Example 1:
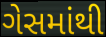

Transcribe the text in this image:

ગેસમાંથી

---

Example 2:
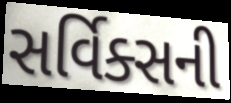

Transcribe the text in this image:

સર્વિક્સની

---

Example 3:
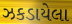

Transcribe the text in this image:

ઝકડાયેલા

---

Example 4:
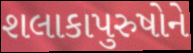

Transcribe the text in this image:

શલાકાપુરુષોને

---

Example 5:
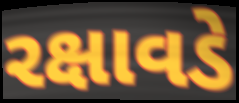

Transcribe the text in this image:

રક્ષાવડે